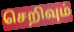
செறிவும்